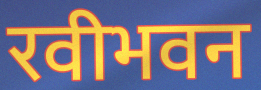
रवीभवन